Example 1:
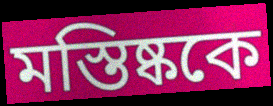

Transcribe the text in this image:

মস্তিষ্ককে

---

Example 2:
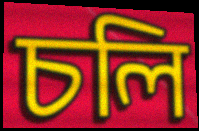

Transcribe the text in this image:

চলি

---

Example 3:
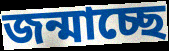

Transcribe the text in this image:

জন্মাচ্ছে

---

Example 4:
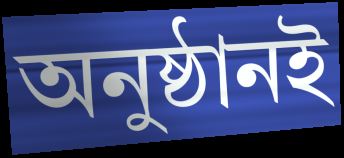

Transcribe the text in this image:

অনুষ্ঠানই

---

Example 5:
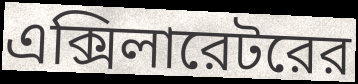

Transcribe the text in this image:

এক্সিলারেটরের